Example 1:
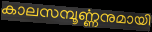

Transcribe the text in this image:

കാലസമ്പൂൎണ്ണനുമായി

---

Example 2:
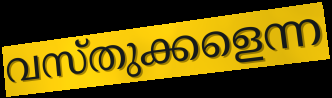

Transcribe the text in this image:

വസ്തുക്കളെന്ന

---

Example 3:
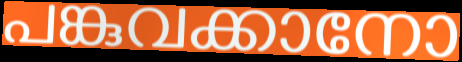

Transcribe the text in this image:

പങ്കുവക്കാനോ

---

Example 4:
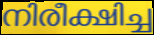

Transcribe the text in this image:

നിരീക്ഷിച്ച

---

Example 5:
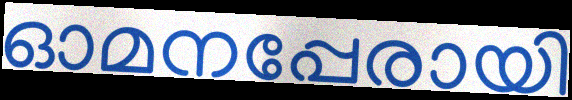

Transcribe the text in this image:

ഓമനപ്പേരായി